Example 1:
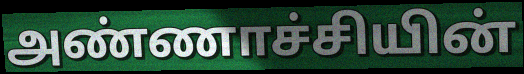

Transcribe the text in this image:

அண்ணாச்சியின்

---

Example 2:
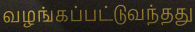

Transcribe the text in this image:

வழங்கப்பட்டுவந்தது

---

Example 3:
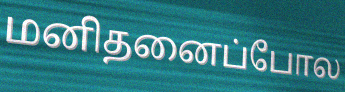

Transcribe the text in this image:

மனிதனைப்போல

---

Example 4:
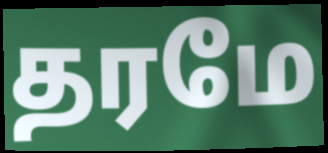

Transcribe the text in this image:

தரமே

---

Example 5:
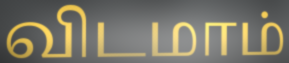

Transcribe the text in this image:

விடமாம்